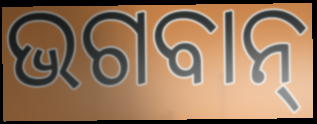
ଭଗବାନ୍